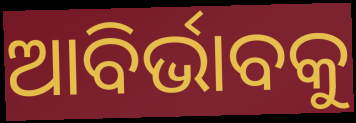
ଆବିର୍ଭାବକୁ